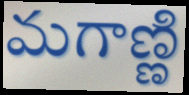
మగాణ్ణి